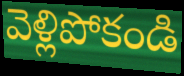
వెళ్లిపోకండి